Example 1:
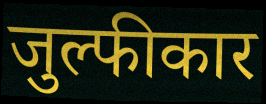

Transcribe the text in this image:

जुल्फीकार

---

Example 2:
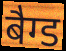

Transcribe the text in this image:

बैग्ड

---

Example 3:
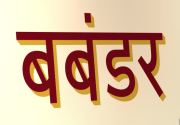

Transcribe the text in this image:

बबंडर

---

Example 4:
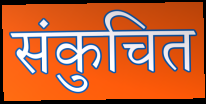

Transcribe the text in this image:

संकुचित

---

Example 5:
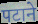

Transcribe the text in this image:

पटाने